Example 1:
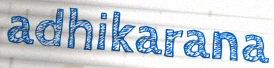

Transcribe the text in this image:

adhikarana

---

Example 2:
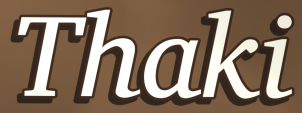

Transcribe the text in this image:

Thaki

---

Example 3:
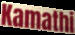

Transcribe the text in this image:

Kamathi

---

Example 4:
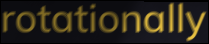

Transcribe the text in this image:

rotationally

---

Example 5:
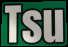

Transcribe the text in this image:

Tsu